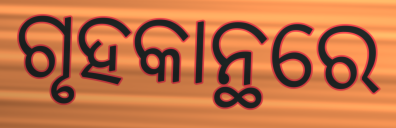
ଗୃହକାନ୍ଥରେ